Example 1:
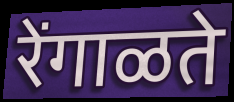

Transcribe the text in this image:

रेंगाळते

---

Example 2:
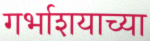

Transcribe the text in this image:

गर्भाशयाच्या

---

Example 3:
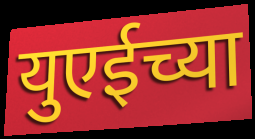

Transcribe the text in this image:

युएईच्या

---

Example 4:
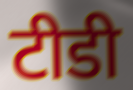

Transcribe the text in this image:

टीडी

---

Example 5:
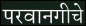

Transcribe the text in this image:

परवानगीचे